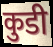
कुडी